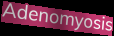
Adenomyosis